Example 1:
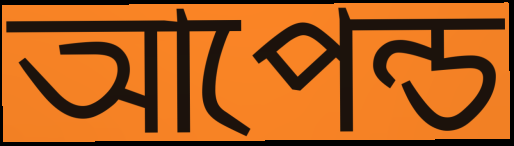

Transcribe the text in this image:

আপেন্ড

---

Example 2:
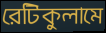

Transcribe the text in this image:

রেটিকুলামে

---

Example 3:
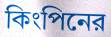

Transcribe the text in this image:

কিংপিনের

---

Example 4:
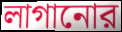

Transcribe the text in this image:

লাগানোর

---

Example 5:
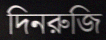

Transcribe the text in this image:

দিনরুজি